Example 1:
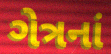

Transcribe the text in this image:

ગેત્રનાં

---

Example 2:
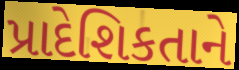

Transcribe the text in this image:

પ્રાદેશિકતાને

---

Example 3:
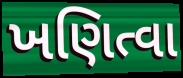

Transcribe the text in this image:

ખણિત્વા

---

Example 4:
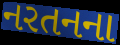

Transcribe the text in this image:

નરતનના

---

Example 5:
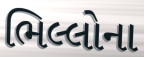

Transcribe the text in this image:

ભિલ્લોના